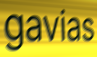
gavias